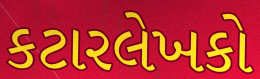
કટારલેખકો